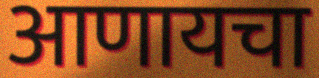
आणायचा